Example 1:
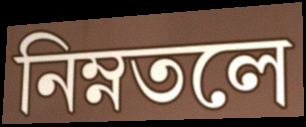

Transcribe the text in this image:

নিম্নতলে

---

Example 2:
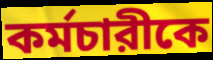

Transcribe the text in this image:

কর্মচারীকে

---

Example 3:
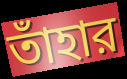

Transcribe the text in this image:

তাঁহার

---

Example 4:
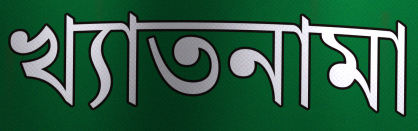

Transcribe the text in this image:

খ্যাতনামা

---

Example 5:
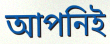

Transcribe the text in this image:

আপনিই